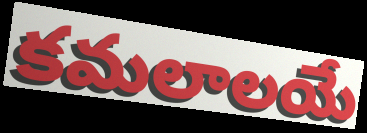
కమలాలయే